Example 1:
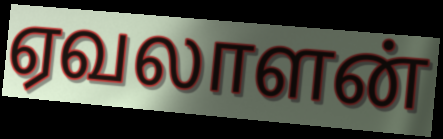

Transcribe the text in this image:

ஏவலாளன்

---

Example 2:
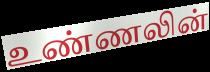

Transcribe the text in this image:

உண்ணலின்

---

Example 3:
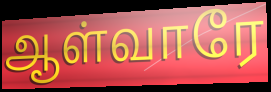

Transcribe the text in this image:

ஆள்வாரே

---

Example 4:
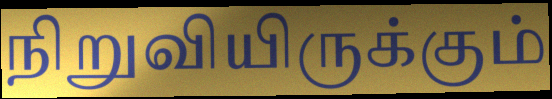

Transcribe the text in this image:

நிறுவியிருக்கும்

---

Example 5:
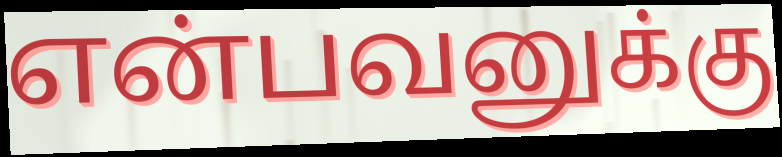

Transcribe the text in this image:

என்பவனுக்கு